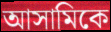
আসামিকে